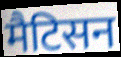
मैटिसन